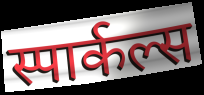
स्पार्कल्स